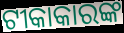
ଟୀକାକାରଙ୍କ